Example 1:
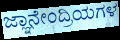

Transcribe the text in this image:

ಜ್ಞಾನೇಂದ್ರಿಯಗಳ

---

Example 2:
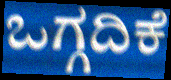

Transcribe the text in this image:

ಒಗ್ಗದಿಕೆ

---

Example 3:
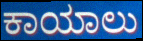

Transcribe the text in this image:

ಕಾಯಾಲು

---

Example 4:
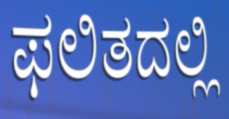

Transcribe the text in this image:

ಫಲಿತದಲ್ಲಿ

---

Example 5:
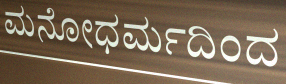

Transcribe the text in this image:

ಮನೋಧರ್ಮದಿಂದ